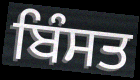
ਬਿੰਸਤ